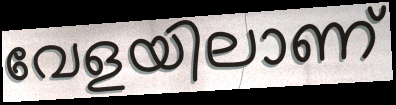
വേളയിലാണ്